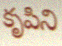
కృపిని